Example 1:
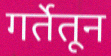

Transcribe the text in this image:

गर्तेतून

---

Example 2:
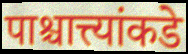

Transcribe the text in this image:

पाश्चात्त्यांकडे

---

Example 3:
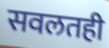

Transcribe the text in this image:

सवलतही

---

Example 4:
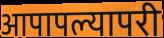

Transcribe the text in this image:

आपापल्यापरी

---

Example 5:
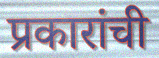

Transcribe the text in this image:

प्रकारांची